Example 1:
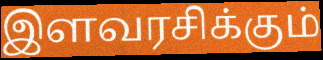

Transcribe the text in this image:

இளவரசிக்கும்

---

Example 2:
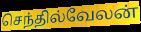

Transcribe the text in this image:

செந்தில்வேலன்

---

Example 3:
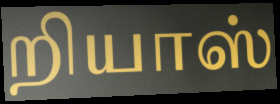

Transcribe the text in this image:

றியாஸ்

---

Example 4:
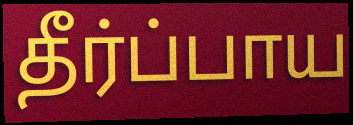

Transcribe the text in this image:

தீர்ப்பாய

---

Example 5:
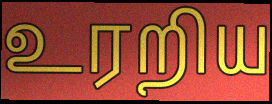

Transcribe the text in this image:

உரறிய